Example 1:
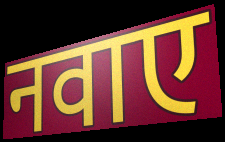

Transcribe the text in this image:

नवाए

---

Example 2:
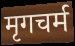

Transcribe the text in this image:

मृगचर्म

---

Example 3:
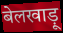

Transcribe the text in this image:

बेलखाड़ू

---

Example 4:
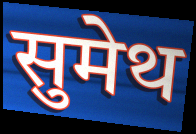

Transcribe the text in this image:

सुमेथ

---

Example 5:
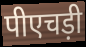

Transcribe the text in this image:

पीएचड़ी